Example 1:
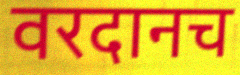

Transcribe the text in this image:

वरदानच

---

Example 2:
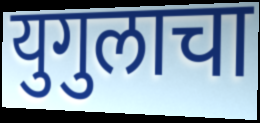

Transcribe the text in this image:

युगुलाचा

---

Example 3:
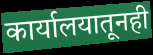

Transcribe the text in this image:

कार्यालयातूनही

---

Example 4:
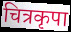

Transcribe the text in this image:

चित्रकृपा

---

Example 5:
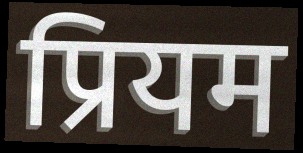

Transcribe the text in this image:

प्रियम